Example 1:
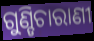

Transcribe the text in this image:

ଗୁଣ୍ଡିଚାରାଣୀ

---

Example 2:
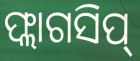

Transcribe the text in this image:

ଫ୍ଲାଗସିପ୍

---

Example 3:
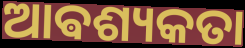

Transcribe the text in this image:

ଆଵଶ୍ୟକତା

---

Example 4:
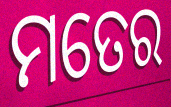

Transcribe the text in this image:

ମତେର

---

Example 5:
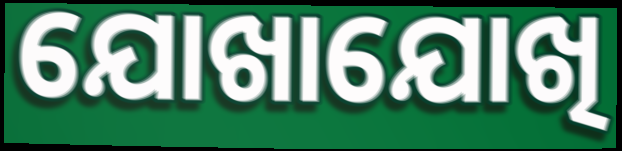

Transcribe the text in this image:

ଯୋଖାଯୋଖି